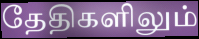
தேதிகளிலும்